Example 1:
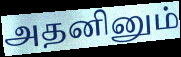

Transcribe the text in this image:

அதனினும்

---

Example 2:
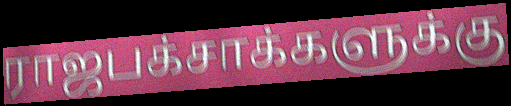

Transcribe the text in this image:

ராஜபக்சாக்களுக்கு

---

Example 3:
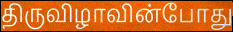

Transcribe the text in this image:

திருவிழாவின்போது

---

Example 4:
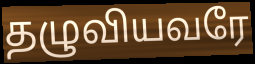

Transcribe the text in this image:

தழுவியவரே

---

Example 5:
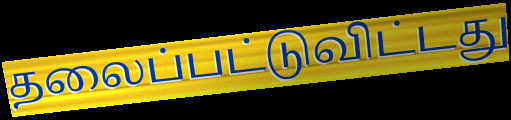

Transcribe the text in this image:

தலைப்பட்டுவிட்டது